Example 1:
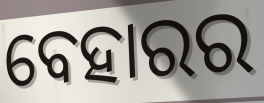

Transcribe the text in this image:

ବେହାରର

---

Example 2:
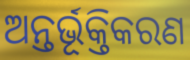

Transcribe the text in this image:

ଅନ୍ତର୍ଭୂକ୍ତିକରଣ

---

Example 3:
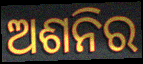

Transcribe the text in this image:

ଅଶନିର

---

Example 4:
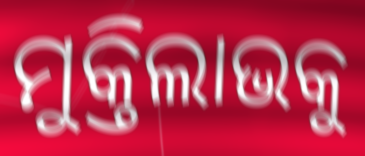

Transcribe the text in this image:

ମୁକ୍ତିଲାଭକୁ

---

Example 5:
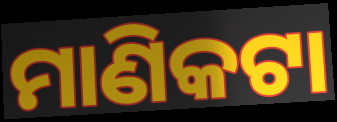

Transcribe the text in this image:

ମାଣିକଟା